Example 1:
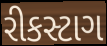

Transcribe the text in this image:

રીકસ્ટાગ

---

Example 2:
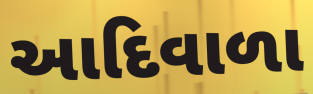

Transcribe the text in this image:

આદિવાળા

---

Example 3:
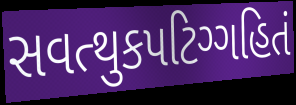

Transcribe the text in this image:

સવત્થુકપટિગ્ગહિતં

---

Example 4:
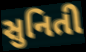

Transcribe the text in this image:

સુનિતી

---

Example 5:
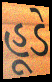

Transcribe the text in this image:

હૂડે